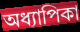
অধ্যাপিকা